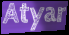
Atyar